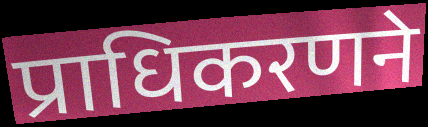
प्राधिकरणने